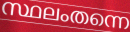
സ്ഥലംതന്നെ